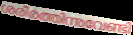
ശരീരത്തിന്നുവേണ്ടി